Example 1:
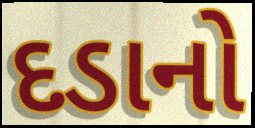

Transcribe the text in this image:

દડાનો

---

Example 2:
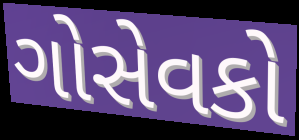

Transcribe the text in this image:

ગોસેવકો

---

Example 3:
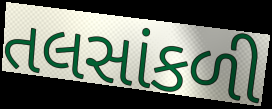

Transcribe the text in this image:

તલસાંકળી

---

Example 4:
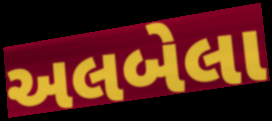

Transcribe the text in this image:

અલબેલા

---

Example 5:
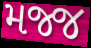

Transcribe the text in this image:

મજ્જ